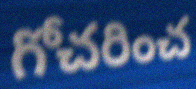
గోచరించ